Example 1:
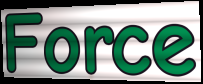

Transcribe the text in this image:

Force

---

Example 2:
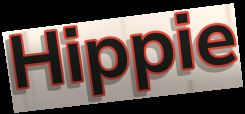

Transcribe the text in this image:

Hippie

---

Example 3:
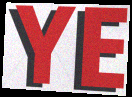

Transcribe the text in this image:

YE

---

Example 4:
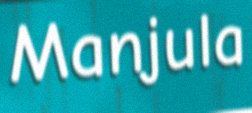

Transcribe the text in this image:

Manjula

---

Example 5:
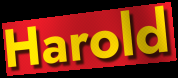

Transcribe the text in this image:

Harold